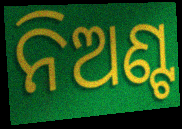
ନିଅଣ୍ଟ